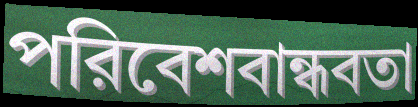
পরিবেশবান্ধবতা